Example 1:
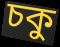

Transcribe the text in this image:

চকু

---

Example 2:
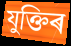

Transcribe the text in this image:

যুক্তিৰ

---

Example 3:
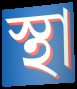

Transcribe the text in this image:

স্থা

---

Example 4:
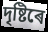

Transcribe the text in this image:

দৃষ্টিৰে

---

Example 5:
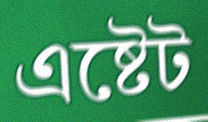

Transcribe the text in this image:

এষ্টেট